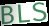
BLS